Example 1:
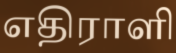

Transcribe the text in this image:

எதிராளி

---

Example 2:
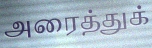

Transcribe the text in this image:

அரைத்துக்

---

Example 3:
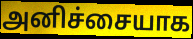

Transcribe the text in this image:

அனிச்சையாக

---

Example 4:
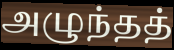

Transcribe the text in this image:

அழுந்தத்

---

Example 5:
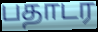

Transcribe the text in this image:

பதாடர